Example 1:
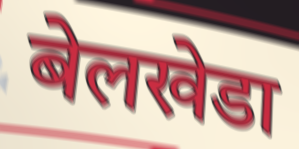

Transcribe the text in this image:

बेलखेडा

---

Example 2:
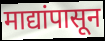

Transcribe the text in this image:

माद्यांपासून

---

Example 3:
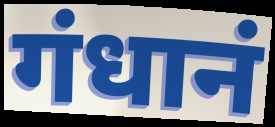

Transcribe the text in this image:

गंधानं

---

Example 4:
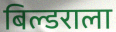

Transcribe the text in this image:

बिल्डराला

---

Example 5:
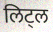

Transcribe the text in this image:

लिट्ल